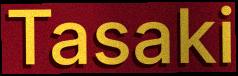
Tasaki